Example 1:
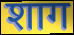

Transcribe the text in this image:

शाग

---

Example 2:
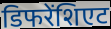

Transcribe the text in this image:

डिफरेंशिएट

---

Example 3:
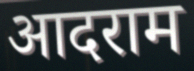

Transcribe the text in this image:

आदराम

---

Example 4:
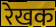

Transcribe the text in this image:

रेखक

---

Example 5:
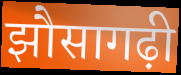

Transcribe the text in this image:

झौसागढ़ी